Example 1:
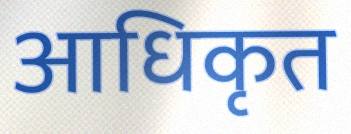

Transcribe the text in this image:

आधिकृत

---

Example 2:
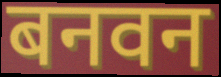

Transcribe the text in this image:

बनवन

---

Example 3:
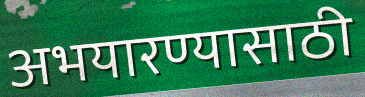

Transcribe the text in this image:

अभयारण्यासाठी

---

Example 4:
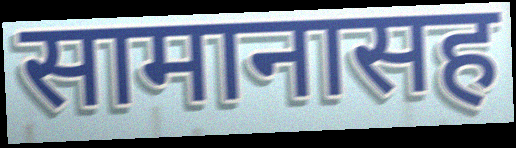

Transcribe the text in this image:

सामानासह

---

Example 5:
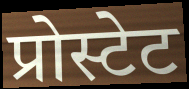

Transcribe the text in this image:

प्रोस्टेट